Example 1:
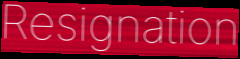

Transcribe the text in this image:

Resignation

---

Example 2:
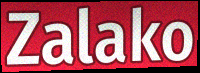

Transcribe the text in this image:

Zalako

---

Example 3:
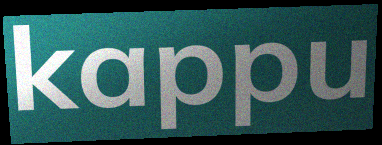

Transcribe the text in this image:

kappu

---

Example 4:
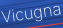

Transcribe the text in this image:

Vicugna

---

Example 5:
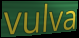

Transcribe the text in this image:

vulva